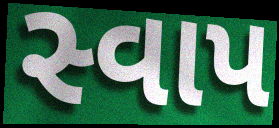
સ્વાપ